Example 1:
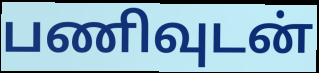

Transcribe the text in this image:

பணிவுடன்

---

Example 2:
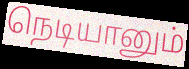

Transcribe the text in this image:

நெடியானும்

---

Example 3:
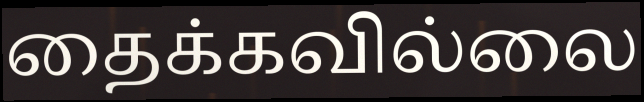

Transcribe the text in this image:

தைக்கவில்லை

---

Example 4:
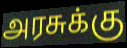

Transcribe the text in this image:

அரசுக்கு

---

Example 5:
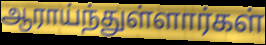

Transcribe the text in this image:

ஆராய்ந்துள்ளார்கள்